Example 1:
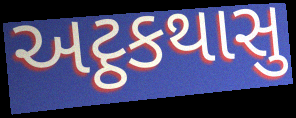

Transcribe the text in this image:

અટ્ઠકથાસુ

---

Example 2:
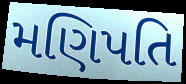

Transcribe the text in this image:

મણિપતિ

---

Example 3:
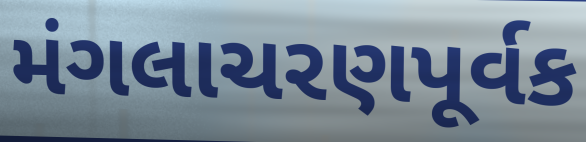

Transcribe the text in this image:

મંગલાચરણપૂર્વક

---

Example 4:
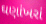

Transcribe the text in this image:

ઘણાંખરાં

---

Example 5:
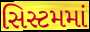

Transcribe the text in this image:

સિસ્ટમમાં